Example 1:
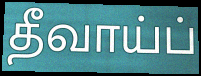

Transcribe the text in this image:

தீவாய்ப்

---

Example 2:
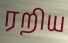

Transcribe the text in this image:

ரறிய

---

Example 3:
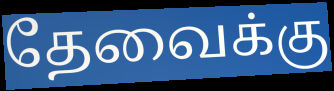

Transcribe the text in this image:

தேவைக்கு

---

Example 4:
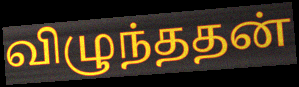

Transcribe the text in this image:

விழுந்ததன்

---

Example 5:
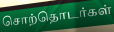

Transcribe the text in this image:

சொற்தொடர்கள்